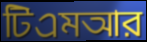
টিএমআর